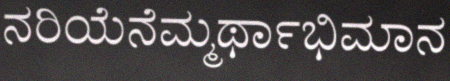
ನರಿಯೆನೆಮ್ಮರ್ಥಾಭಿಮಾನ